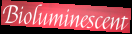
Bioluminescent